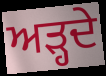
ਅੜ੍ਹਦੇ